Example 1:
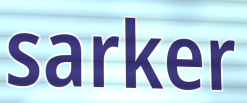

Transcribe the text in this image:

sarker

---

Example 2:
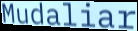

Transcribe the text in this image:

Mudaliar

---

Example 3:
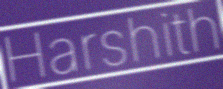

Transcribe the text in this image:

Harshith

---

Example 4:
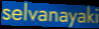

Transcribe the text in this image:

selvanayaki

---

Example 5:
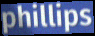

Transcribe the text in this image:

phillips